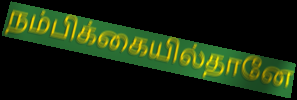
நம்பிக்கையில்தானே